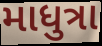
માધુત્રા